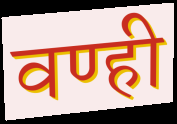
वण्ही